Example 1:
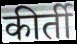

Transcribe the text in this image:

कीर्ती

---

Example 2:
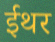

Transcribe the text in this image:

ईथर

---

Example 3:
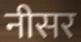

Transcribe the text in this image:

नीसर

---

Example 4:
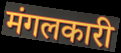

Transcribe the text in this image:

मंगलकारी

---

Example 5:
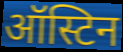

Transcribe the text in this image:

ऑस्टिन